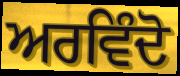
ਅਰਵਿੰਦੋ